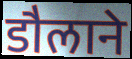
डौलाने